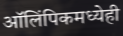
ऑलिंपिकमध्येही